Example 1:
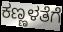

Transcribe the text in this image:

ಕಣ್ಣಳತೆಗೆ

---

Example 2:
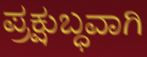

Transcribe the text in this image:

ಪ್ರಕ್ಷುಬ್ಧವಾಗಿ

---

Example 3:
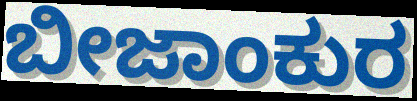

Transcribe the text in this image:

ಬೀಜಾಂಕುರ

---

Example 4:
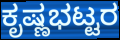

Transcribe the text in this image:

ಕೃಷ್ಣಭಟ್ಟರ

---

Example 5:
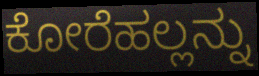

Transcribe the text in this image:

ಕೋರೆಹಲ್ಲನ್ನು